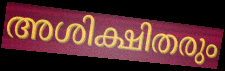
അശിക്ഷിതരും